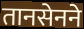
तानसेनने